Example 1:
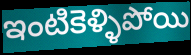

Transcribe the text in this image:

ఇంటికెళ్ళిపోయి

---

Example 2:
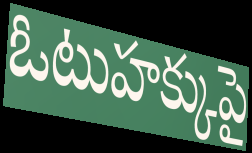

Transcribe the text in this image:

ఓటుహక్కుపై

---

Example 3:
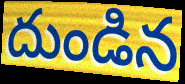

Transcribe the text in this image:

దుండిన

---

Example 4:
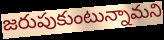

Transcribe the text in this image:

జరుపుకుంటున్నామని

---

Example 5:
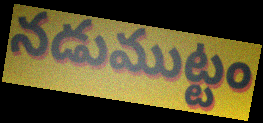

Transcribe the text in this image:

నడుముట్టం